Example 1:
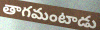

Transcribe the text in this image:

తాగమంటాడు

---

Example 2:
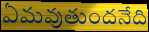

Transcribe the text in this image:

ఏమవుతుందనేది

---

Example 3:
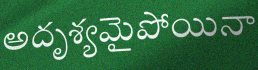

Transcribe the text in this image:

అదృశ్యమైపోయినా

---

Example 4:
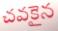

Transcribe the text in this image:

చవకైన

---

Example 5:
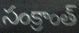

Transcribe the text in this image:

సంక్రాంత్